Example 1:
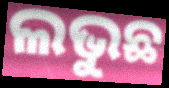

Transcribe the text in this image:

ଲଭୁଛ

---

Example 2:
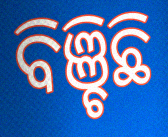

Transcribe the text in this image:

ବିଞ୍ଚିଛି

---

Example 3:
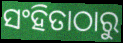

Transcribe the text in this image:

ସଂହିତାଠାରୁ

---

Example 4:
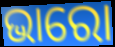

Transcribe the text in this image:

ଭାରୋ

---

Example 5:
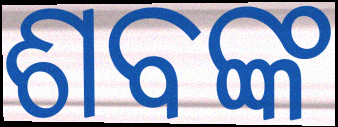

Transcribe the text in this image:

ଶବଙ୍କ